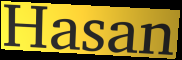
Hasan